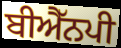
ਬੀਐੱਨਪੀ